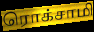
ரொக்சாமி